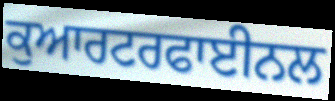
ਕੁਆਰਟਰਫਾਈਨਲ